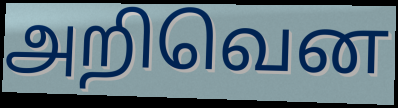
அறிவென